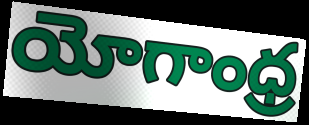
యోగాంధ్ర